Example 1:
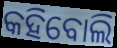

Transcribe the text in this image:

କହିବୋଲି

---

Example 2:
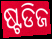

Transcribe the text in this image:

ଷ୍ଟଡିଜ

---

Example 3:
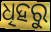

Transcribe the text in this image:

ଧିହରୁ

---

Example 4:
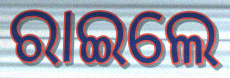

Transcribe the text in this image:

ରାଇଲେ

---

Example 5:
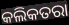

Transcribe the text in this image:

କଲିକତରା